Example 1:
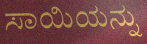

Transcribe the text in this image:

ಸಾಯಿಯನ್ನು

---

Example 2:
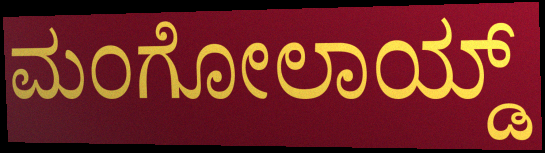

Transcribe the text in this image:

ಮಂಗೋಲಾಯ್ಡ್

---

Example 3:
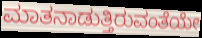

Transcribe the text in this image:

ಮಾತನಾಡುತ್ತಿರುವಂತೆಯೇ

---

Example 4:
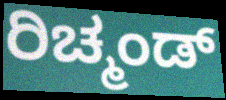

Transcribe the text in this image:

ರಿಚ್ಮಂಡ್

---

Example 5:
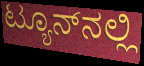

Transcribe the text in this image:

ಟ್ಯೂನ್‌ನಲ್ಲಿ